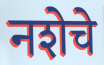
नशेचे